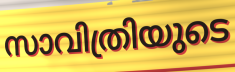
സാവിത്രിയുടെ